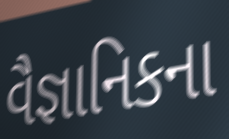
વૈજ્ઞાનિકના